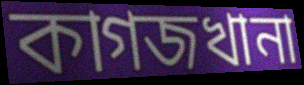
কাগজখানা